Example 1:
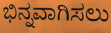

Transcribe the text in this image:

ಭಿನ್ನವಾಗಿಸಲು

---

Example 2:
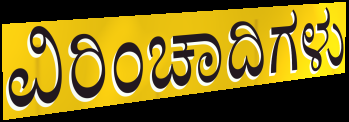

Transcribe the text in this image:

ವಿರಿಂಚಾದಿಗಳು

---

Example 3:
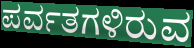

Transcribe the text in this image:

ಪರ್ವತಗಳಿರುವ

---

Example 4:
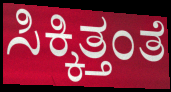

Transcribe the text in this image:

ಸಿಕ್ಕಿತ್ತಂತೆ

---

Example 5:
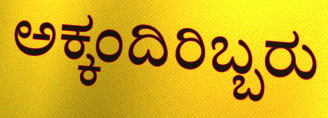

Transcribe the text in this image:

ಅಕ್ಕಂದಿರಿಬ್ಬರು